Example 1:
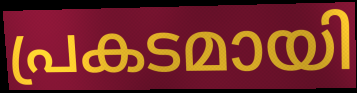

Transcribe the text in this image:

പ്രകടമായി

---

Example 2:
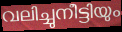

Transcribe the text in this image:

വലിച്ചുനീട്ടിയും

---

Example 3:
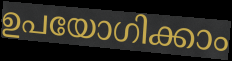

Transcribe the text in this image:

ഉപയോഗിക്കാം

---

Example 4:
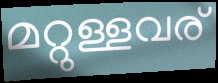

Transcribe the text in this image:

മറ്റുള്ളവര്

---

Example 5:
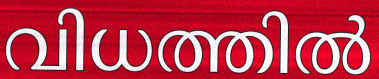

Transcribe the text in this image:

വിധത്തിൽ